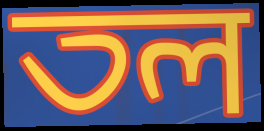
তল